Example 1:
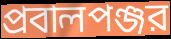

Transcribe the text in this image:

প্রবালপঞ্জর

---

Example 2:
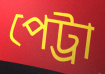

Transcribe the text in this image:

পেট্রা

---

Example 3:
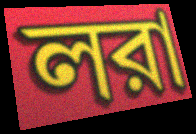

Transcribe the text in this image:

লরা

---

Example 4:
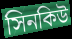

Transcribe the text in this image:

সিনকিউ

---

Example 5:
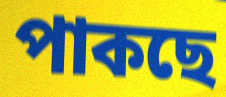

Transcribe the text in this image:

পাকছে